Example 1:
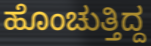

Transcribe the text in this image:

ಹೊಂಚುತ್ತಿದ್ದ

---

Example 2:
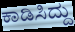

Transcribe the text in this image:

ಕಾಡಿಸಿದ್ದು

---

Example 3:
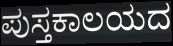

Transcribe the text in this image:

ಪುಸ್ತಕಾಲಯದ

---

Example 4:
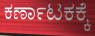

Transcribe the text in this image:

ಕರ್ಣಾಟಕಕ್ಕೆ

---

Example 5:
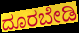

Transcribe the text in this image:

ದೂರಬೇಡಿ